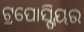
ଟ୍ରପୋସ୍ଫିୟର